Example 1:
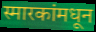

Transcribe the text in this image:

स्मारकांमधून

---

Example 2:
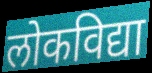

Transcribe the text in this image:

लोकविद्या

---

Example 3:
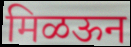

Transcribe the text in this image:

मिळऊन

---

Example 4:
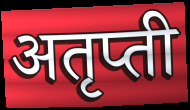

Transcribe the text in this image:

अतृप्ती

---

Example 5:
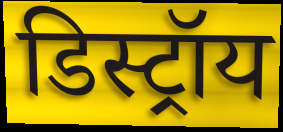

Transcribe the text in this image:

डिस्ट्रॉय